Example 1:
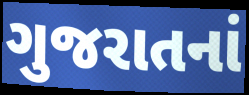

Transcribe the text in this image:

ગુજરાતનાં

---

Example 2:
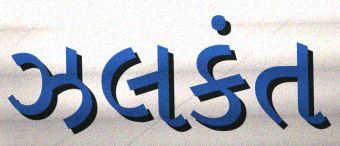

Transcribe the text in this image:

ઝલકંત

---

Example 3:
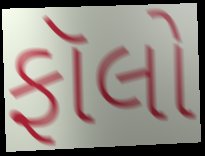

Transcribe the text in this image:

ફૉલો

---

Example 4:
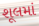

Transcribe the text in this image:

શૂલમાં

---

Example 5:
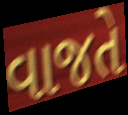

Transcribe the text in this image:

વાજતે